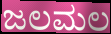
ಜಲಮಲ